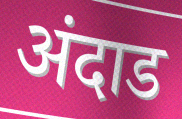
अंदाड